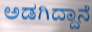
ಅಡಗಿದ್ದಾನೆ